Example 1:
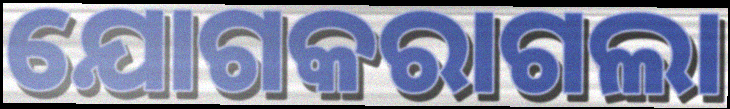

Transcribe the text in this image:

ଯୋଗକରାଗଲା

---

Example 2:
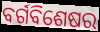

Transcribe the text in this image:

ବର୍ଗବିଶେଷର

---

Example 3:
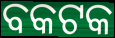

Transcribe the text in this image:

ବକଟକ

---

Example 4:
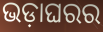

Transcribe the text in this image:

ଭଡ଼ାଘରର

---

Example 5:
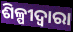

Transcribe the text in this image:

ଶିଳ୍ପୀଦ୍ୱାରା